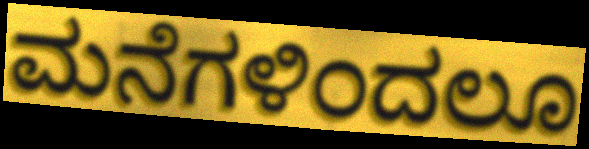
ಮನೆಗಳಿಂದಲೂ